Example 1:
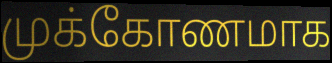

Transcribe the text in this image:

முக்கோணமாக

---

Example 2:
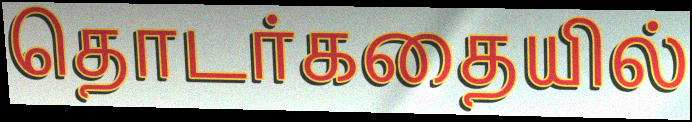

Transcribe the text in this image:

தொடர்கதையில்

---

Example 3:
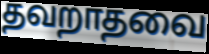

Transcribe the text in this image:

தவறாதவை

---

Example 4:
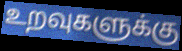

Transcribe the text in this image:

உறவுகளுக்கு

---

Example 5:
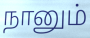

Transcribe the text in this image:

நானும்